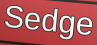
Sedge